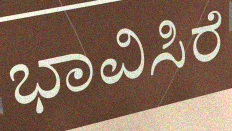
ಭಾವಿಸಿರೆ